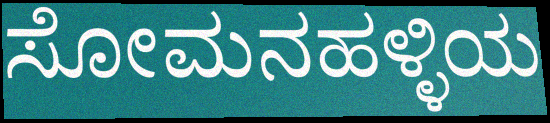
ಸೋಮನಹಳ್ಳಿಯ